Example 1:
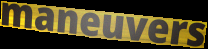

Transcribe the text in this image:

maneuvers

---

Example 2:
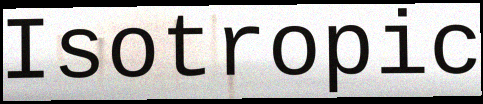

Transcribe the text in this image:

Isotropic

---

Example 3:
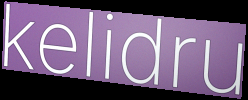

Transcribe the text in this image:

kelidru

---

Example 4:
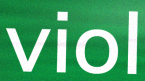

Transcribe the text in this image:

viol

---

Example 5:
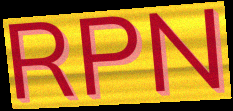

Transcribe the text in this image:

RPN